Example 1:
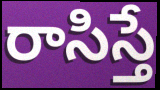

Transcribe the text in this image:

రాసిస్తే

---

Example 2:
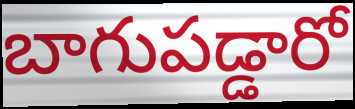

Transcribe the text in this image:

బాగుపడ్డారో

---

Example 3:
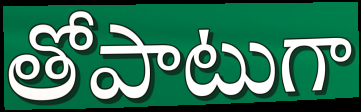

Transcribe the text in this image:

తోపాటుగా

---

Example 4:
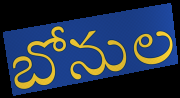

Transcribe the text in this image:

బోనుల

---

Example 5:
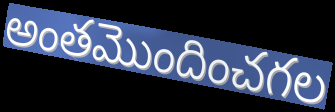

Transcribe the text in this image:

అంతమొందించగల